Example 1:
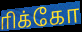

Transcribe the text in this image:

ரிக்கோ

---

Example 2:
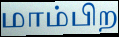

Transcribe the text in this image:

மாம்பிற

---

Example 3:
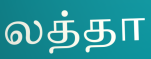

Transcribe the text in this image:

லத்தா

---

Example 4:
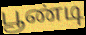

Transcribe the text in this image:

பூண்டி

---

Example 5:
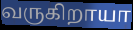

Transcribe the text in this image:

வருகிறாயா